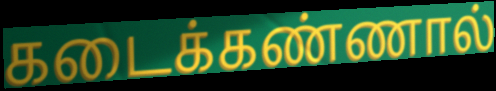
கடைக்கண்ணால்